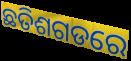
ଛତିଶଗଡରେ